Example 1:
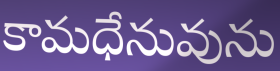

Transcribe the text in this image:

కామధేనువును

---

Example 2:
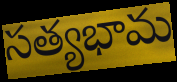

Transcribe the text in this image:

సత్యభామ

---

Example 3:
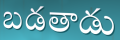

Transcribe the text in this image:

బడతాడు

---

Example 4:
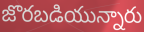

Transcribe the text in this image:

జొరబడియున్నారు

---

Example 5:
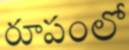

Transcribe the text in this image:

రూపంలో